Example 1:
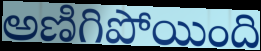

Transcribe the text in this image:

అణిగిపోయింది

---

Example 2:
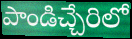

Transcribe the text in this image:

పాండిచ్చేరిలో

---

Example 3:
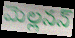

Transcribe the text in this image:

మెల్లనన్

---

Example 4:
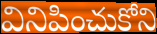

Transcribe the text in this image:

వినిపించుకోని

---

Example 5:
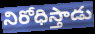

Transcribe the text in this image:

నిరోధిస్తాడు